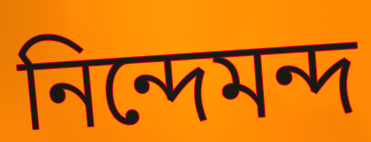
নিন্দেমন্দ